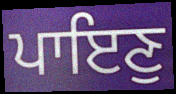
ਪਾਇਣੁ